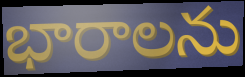
భారాలను